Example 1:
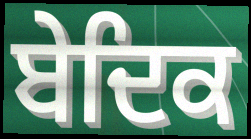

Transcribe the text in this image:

ਬੇਦਿਕ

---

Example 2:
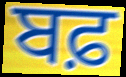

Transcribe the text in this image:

ਬਫ਼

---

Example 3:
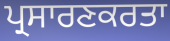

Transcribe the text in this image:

ਪ੍ਰਸਾਰਣਕਰਤਾ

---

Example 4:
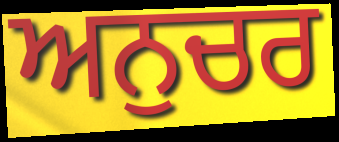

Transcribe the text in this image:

ਅਨੁਚਰ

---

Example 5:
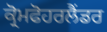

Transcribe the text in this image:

ਕ੍ਰੋਮਫੋਹਰਲੈਂਡਰ